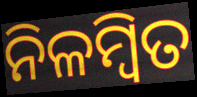
ନିଳମ୍ବିତ